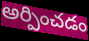
అర్పించడం